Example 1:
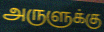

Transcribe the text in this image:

அருளுக்கு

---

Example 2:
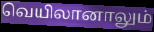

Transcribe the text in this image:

வெயிலானாலும்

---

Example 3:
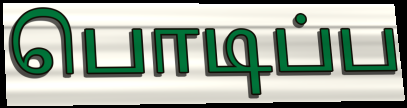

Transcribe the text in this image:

பொடிப்ப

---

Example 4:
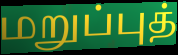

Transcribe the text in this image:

மறுப்புத்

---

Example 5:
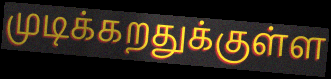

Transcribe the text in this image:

முடிக்கறதுக்குள்ள